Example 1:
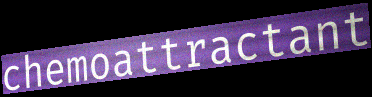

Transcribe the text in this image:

chemoattractant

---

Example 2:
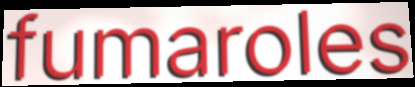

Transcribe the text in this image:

fumaroles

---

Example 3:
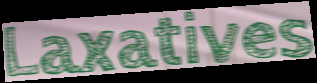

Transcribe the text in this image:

Laxatives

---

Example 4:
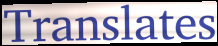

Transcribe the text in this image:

Translates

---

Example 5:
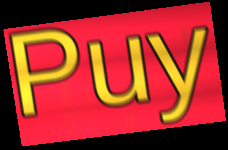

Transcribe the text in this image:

Puy